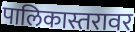
पालिकास्तरावर